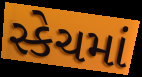
સ્કેચમાં